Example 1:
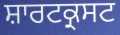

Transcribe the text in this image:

ਸ਼ਾਰਟਕ੍ਰਸਟ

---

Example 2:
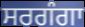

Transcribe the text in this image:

ਸਰਗੰਗਾ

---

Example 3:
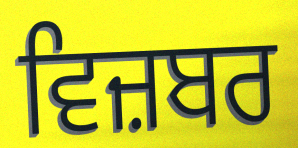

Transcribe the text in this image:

ਵਿਜ਼ਬਰ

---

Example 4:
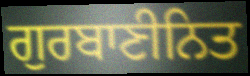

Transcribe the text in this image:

ਗੁਰਬਾਣੀਨਿਤ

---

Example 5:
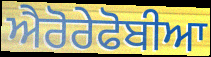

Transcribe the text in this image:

ਐਰੋਰੇਫੋਬੀਆ